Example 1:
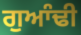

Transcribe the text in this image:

ਗੁਆੰਢੀ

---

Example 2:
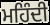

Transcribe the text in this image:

ਮਹਿੰਦੀ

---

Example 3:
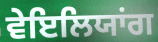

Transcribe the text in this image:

ਵੇਇਲਿਯਾਂਗ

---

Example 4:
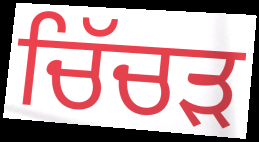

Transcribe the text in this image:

ਚਿੱਚੜ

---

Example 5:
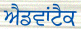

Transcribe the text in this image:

ਐਡਵਾਂਟੈਕ